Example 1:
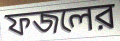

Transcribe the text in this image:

ফজলের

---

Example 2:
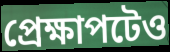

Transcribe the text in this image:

প্রেক্ষাপটেও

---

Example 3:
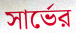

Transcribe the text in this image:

সার্ভের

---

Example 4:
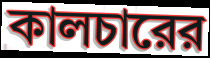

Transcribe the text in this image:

কালচারের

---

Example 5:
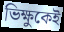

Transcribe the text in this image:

ভিক্ষুকেই